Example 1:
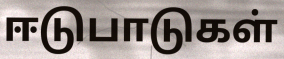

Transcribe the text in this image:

ஈடுபாடுகள்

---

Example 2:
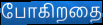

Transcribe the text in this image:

போகிறதை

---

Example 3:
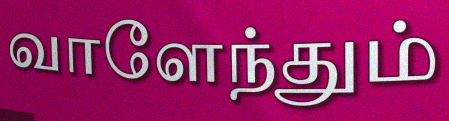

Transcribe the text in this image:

வாளேந்தும்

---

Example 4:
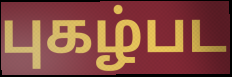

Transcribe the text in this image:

புகழ்பட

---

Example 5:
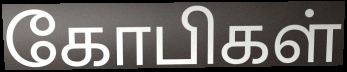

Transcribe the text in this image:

கோபிகள்